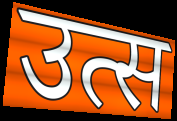
उत्स